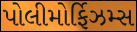
પોલીમોર્ફિઝમ્સ